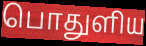
பொதுளிய